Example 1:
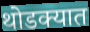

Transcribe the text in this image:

थोडक्यात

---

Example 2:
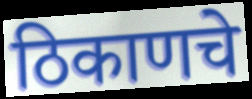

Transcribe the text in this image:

ठिकाणचे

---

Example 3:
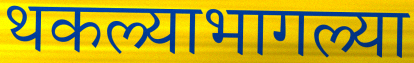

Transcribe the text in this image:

थकल्याभागल्या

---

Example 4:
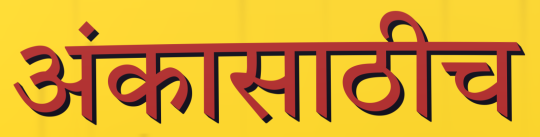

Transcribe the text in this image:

अंकासाठीच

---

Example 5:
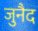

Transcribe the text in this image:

जुनैद